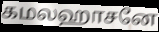
கமலஹாசனே